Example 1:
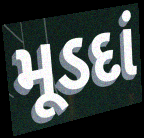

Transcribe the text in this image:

મૂડદાં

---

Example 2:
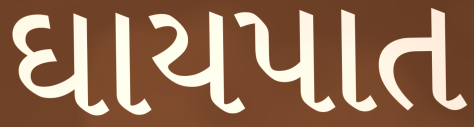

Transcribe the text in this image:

ઘાયપાત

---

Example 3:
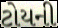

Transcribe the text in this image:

ટોયની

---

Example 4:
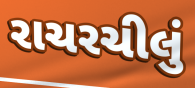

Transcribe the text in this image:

રાચરચીલું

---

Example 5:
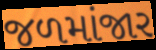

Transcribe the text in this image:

જળમાંજાર